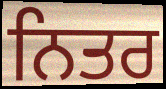
ਨਿਤਰ